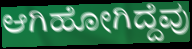
ಆಗಿಹೋಗಿದ್ದೆವು